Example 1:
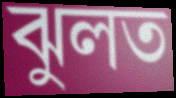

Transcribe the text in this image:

ঝুলত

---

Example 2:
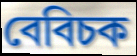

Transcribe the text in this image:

বেবিচক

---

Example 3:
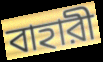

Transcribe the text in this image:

বাহারী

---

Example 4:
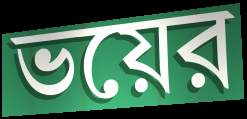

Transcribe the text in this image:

ভয়ের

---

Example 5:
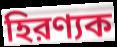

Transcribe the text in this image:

হিরণ্যক